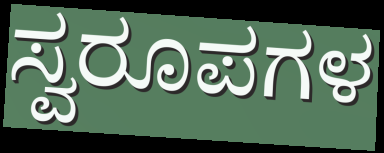
ಸ್ವರೂಪಗಳ